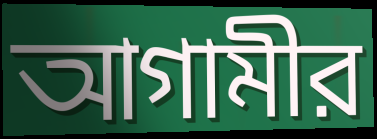
আগামীর